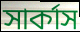
সার্কাস